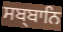
ਸਬ੍ਬਾਨਿ